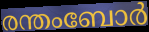
രന്തംബോർ